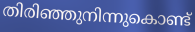
തിരിഞ്ഞുനിന്നുകൊണ്ട്